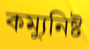
কম্যুনিষ্ট